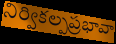
నిర్వికల్పప్రభావా